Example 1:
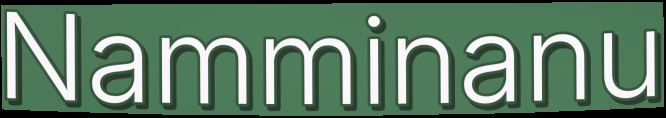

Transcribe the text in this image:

Namminanu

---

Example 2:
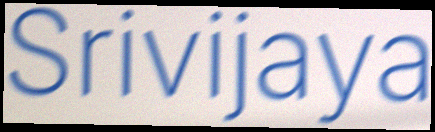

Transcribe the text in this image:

Srivijaya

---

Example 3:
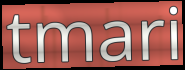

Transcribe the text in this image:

tmari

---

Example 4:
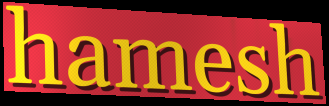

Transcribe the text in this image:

hamesh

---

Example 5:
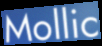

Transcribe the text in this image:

Mollic